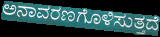
ಅನಾವರಣಗೊಳಿಸುತ್ತದೆ